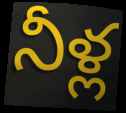
నీళ్ల